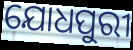
ଯୋଧପୁରୀ